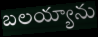
బలయ్యాను